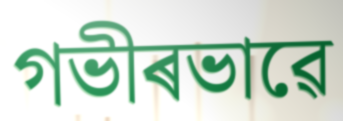
গভীৰভাৱে